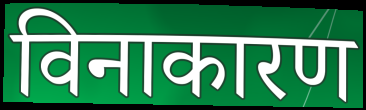
विनाकारण